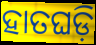
ହାତଘଡ଼ି